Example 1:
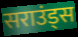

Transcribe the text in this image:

सराउंड्स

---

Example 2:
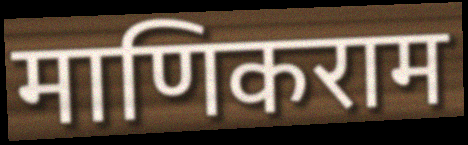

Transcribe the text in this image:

माणिकराम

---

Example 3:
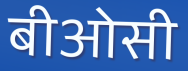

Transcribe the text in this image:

बीओसी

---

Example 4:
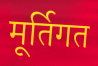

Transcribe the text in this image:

मूर्तिगत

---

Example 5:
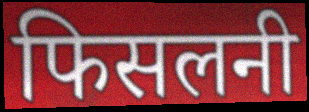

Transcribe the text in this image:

फिसलनी